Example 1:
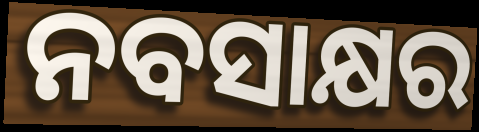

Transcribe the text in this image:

ନବସାକ୍ଷର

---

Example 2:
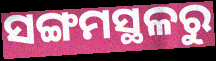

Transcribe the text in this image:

ସଙ୍ଗମସ୍ଥଳରୁ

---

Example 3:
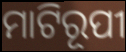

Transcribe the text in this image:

ମାଟିରୂପୀ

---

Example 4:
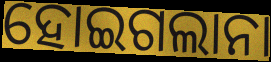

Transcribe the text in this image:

ହୋଇଗଲାନା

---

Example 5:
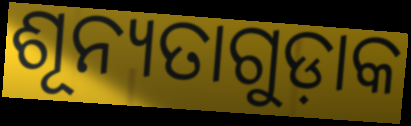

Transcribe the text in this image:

ଶୂନ୍ୟତାଗୁଡ଼ାକ